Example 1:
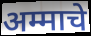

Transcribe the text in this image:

अम्माचे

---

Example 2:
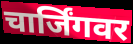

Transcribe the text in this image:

चार्जिंगवर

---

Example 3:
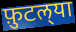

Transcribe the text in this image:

फ़ुटल्या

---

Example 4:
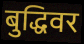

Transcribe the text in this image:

बुद्धिवर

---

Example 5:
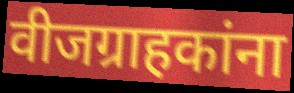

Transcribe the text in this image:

वीजग्राहकांना